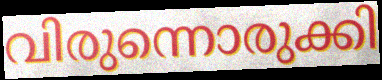
വിരുന്നൊരുക്കി